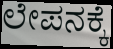
ಲೇಪನಕ್ಕೆ